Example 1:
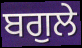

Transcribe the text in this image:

ਬਗੁਲੇ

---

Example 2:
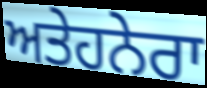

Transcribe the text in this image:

ਅਤੇਹਨੇਰਾ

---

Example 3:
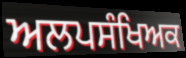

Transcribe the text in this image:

ਅਲਪਸੰਖਿਅਕ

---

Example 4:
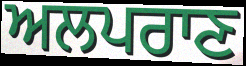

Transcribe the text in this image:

ਅਲਪਰਾਣ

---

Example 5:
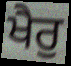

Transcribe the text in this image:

ਖੈਰੁ